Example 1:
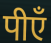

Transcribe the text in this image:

पीएँ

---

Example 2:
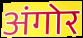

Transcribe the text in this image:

अंगोर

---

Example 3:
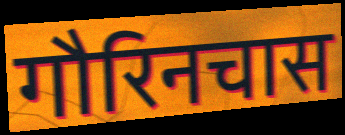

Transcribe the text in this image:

गौरिनचास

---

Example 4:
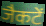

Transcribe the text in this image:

जैकटें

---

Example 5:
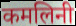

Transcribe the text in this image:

कमलिनी